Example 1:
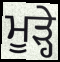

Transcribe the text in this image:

ਮੂੜ੍ਹੇ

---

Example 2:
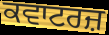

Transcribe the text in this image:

ਕਵਾਟਰਜ਼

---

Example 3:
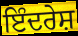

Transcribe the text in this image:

ਇੰਦਰੇਸ਼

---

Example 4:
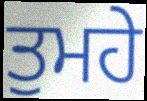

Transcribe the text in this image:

ਤੁਮਹੇ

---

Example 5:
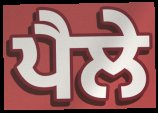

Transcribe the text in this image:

ਪੈਲੇ